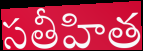
సతీహిత